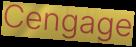
Cengage